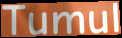
Tumul